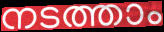
നടത്താം